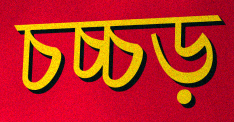
চচ্চড়